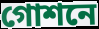
গোশনে